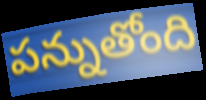
పన్నుతోంది